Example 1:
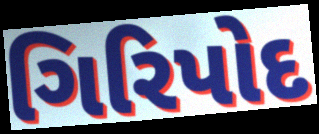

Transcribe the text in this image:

ગિરિપોદ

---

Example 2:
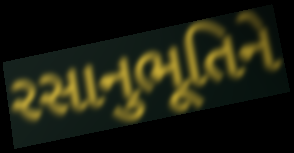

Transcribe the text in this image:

રસાનુભૂતિને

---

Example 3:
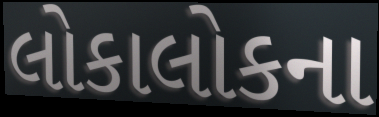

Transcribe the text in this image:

લોકાલોકના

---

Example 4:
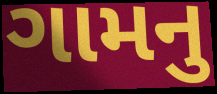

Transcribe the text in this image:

ગામનુ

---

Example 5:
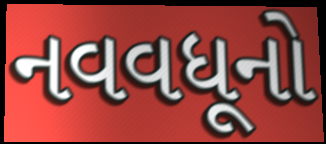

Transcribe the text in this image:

નવવધૂનો